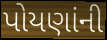
પોયણાંની